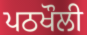
ਪਠਖੌਲੀ